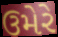
ઉમેરે